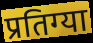
प्रतिग्या